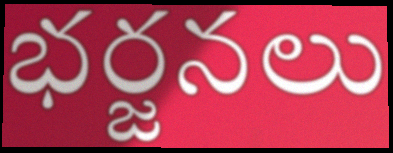
భర్జనలు